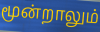
மூன்றாலும்